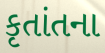
કૃતાંતના